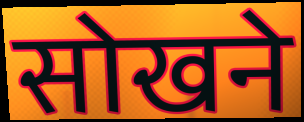
सोखने